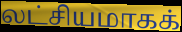
லட்சியமாகக்